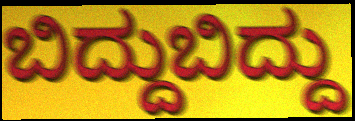
ಬಿದ್ದುಬಿದ್ದು